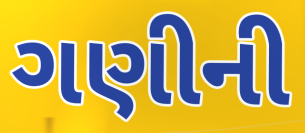
ગણીની